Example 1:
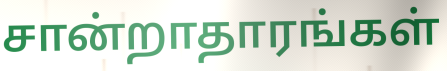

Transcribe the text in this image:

சான்றாதாரங்கள்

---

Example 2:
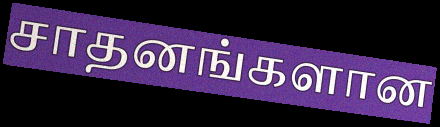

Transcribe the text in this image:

சாதனங்களான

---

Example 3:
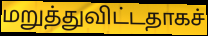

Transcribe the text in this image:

மறுத்துவிட்டதாகச்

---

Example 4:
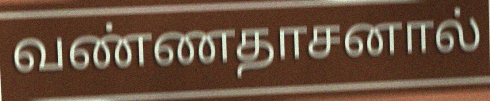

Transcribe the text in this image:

வண்ணதாசனால்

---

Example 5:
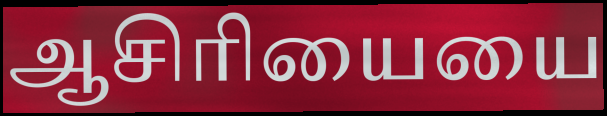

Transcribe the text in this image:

ஆசிரியையை